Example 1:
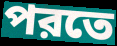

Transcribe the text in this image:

পরতে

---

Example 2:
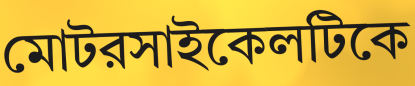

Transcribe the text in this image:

মোটরসাইকেলটিকে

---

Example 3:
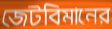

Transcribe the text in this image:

জেটবিমানের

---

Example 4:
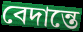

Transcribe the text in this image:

বেদান্তে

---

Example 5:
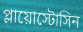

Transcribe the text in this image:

প্লায়োস্টোসিন